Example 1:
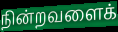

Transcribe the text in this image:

நின்றவளைக்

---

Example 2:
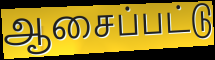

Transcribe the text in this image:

ஆசைப்பட்டு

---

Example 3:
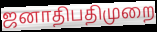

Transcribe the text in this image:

ஜனாதிபதிமுறை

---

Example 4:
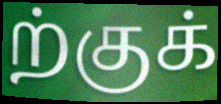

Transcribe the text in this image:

ற்குக்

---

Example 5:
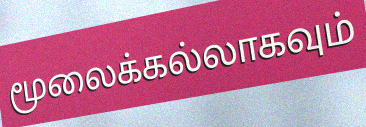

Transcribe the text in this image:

மூலைக்கல்லாகவும்